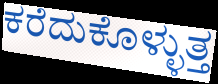
ಕರೆದುಕೊಳ್ಳುತ್ತ